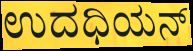
ಉದಧಿಯನ್